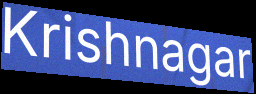
Krishnagar